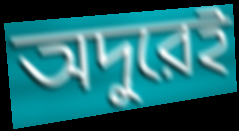
অদুরেই